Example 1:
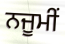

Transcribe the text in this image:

ਨਜੂਮੀਂ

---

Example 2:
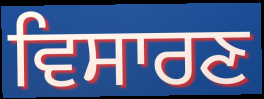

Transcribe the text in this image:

ਵਿਸਾਰਣ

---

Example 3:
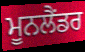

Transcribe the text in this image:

ਮੂਨਲੈਂਡਰ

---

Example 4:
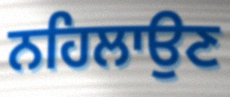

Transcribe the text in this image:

ਨਹਿਲਾਉਣ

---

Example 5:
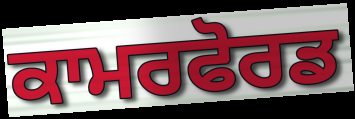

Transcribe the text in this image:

ਕਾਮਰਫੋਰਡ